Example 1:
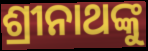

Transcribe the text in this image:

ଶ୍ରୀନାଥଙ୍କୁ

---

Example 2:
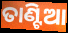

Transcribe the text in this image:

ତାଣ୍ଟିଆ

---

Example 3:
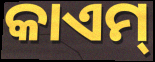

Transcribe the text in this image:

କାଏମ୍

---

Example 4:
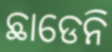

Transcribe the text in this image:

ଛାଡେନି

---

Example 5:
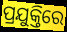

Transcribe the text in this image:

ପ୍ରଯୁକ୍ତିରେ